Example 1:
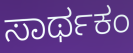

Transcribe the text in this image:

ಸಾರ್ಥಕಂ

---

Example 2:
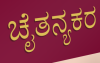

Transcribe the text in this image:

ಚೈತನ್ಯಕರ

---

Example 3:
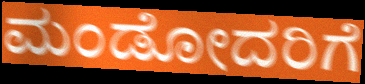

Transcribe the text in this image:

ಮಂಡೋದರಿಗೆ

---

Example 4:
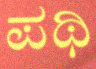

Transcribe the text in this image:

ಪಥಿ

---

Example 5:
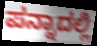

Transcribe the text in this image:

ಪನ್ನಾದಲ್ಲಿ